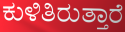
ಕುಳಿತಿರುತ್ತಾರೆ